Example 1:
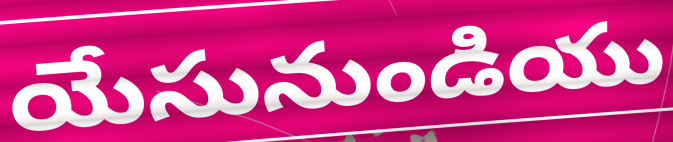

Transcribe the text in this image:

యేసునుండియు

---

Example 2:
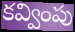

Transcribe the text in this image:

కవ్వింపు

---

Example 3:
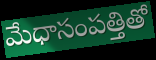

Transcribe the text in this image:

మేధాసంపత్తితో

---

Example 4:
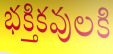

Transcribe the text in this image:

భక్తికవులకి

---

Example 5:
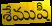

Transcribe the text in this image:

శేముషీ